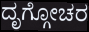
ದೃಗ್ಗೋಚರ